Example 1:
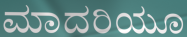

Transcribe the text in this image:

ಮಾದರಿಯೂ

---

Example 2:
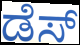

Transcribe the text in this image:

ಡೆಸ್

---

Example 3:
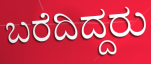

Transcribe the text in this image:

ಬರೆದಿದ್ದರು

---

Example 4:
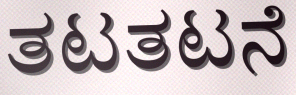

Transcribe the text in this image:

ತಟತಟನೆ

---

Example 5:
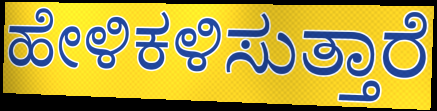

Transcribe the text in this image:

ಹೇಳಿಕಳಿಸುತ್ತಾರೆ